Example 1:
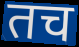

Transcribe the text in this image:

तच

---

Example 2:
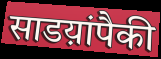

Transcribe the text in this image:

साडय़ांपैकी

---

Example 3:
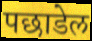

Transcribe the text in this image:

पछाडेल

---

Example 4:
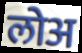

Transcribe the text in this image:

लोअ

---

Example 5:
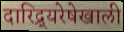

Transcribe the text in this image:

दारिद्र्यरेषेखाली